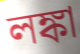
লঙ্কা